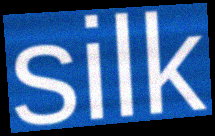
silk